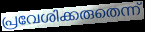
പ്രവേശിക്കരുതെന്ന്